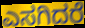
ಎಸಗಿದರೆ